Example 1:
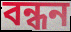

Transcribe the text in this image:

বন্ধন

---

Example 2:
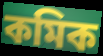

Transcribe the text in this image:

কমিক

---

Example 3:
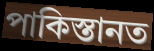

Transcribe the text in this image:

পাকিস্তানত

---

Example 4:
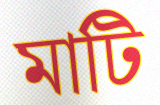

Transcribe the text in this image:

মাটি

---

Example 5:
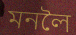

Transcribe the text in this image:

মনলৈ